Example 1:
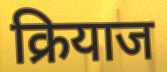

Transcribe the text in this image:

क्रियाज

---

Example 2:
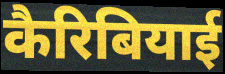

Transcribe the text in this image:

कैरिबियाई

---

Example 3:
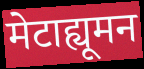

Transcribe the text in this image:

मेटाह्यूमन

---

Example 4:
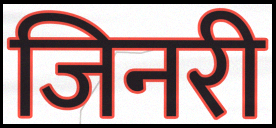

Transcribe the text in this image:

जिनरी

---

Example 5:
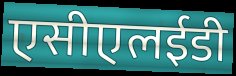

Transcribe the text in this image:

एसीएलईडी